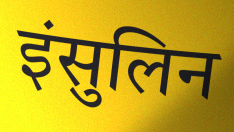
इंसुलिन